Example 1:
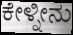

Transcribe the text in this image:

ಕೇಳ್ನೀನು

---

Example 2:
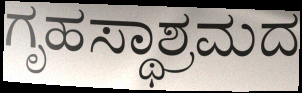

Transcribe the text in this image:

ಗೃಹಸ್ಥಾಶ್ರಮದ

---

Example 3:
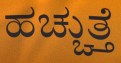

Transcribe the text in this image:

ಹಚ್ಚುತ್ತೆ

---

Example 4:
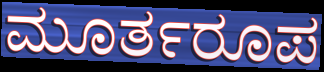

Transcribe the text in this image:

ಮೂರ್ತರೂಪ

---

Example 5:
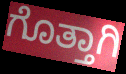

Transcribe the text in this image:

ಗೊತ್ತಾಗಿ